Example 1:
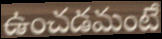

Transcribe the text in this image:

ఉంచడమంటే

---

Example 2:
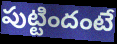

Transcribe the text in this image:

పుట్టిందంటే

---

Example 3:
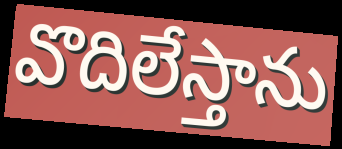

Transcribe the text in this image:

వొదిలేస్తాను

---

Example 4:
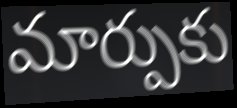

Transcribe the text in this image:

మార్పుకు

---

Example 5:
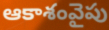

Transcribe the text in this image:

ఆకాశంవైపు